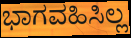
ಭಾಗವಹಿಸಿಲ್ಲ